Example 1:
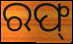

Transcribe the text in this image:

ରଫ୍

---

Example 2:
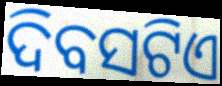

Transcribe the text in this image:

ଦିବସଟିଏ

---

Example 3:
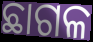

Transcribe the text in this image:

ଛାଗଳ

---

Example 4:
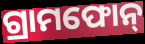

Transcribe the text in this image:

ଗ୍ରାମଫୋନ୍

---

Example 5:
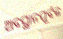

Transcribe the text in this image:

ଅବସ୍ଥାନପୂର୍ବକ